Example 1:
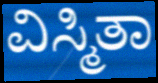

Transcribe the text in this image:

ವಿಸ್ಮಿತಾ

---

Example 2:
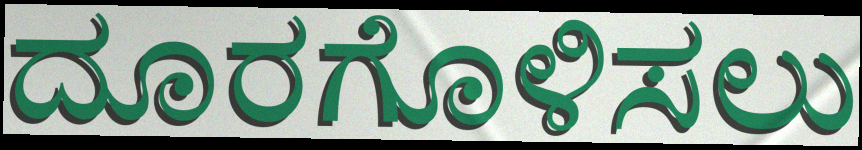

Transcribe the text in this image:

ದೂರಗೊಳಿಸಲು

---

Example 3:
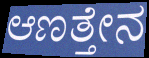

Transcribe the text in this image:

ಆಣತ್ತೇನ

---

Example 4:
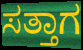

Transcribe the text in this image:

ಸತ್ತಾಗ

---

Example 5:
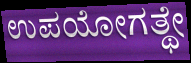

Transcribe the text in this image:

ಉಪಯೋಗತ್ಥೇ